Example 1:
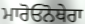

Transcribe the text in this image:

ਮਾਰੋਓਨੋਥੇਰਾ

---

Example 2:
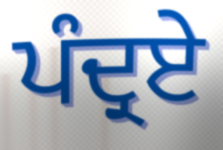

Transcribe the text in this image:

ਪੰਦ੍ਰਏ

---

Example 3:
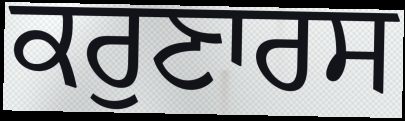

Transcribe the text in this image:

ਕਰੁਣਾਰਸ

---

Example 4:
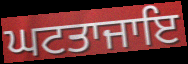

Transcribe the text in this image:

ਘਟਤਾਜਾਇ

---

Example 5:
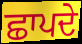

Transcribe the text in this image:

ਛਾਪਦੇ